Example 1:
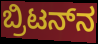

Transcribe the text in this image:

ಬ್ರಿಟನ್‌ನ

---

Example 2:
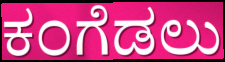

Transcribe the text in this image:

ಕಂಗೆಡಲು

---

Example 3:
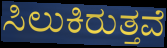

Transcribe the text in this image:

ಸಿಲುಕಿರುತ್ತವೆ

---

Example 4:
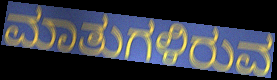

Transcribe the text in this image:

ಮಾತುಗಳಿರುವ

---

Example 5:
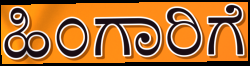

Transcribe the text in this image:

ಹಿಂಗಾರಿಗೆ